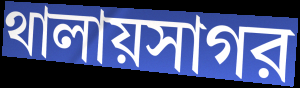
থালায়সাগর